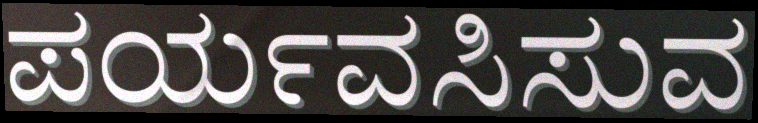
ಪರ್ಯವಸಿಸುವ